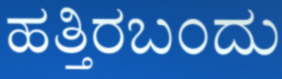
ಹತ್ತಿರಬಂದು